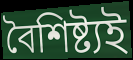
বৈশিষ্ট্যই